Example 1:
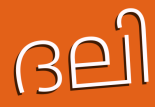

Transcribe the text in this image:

ദലി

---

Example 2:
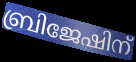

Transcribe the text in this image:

ബ്രിജേഷിന്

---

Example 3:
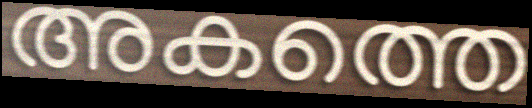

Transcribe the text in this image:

അകത്തെ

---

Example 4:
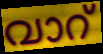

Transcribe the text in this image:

വാറ്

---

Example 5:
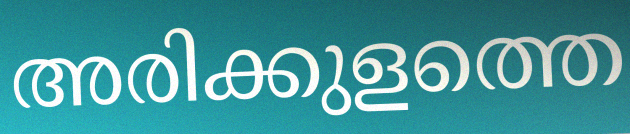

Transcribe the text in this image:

അരിക്കുളത്തെ